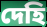
দেহি